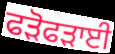
ਫੜੋਫੜਾਈ